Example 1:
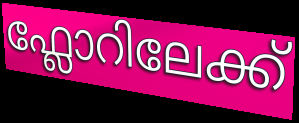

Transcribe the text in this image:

ഫ്ലോറിലേക്ക്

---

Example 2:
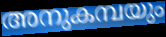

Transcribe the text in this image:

അനുകമ്പയും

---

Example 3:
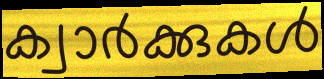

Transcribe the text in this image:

ക്വാർക്കുകൾ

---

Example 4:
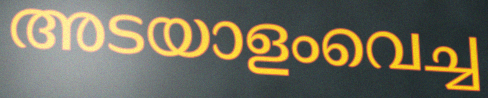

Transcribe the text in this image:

അടയാളംവെച്ച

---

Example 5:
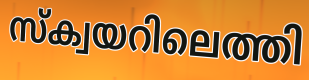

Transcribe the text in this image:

സ്ക്വയറിലെത്തി